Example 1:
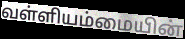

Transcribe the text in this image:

வள்ளியம்மையின்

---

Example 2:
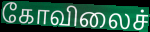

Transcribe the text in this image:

கோவிலைச்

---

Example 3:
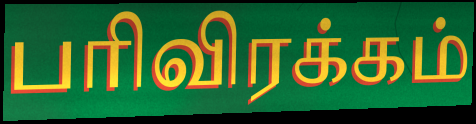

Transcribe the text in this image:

பரிவிரக்கம்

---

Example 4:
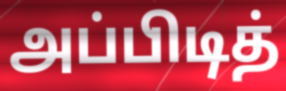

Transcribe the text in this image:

அப்பிடித்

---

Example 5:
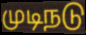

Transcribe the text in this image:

முடிநடு